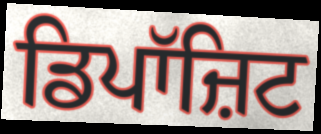
ਡਿਪਾੱਜ਼ਿਟ